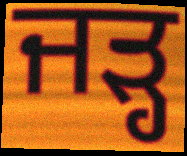
ਜੜ੍ਹ